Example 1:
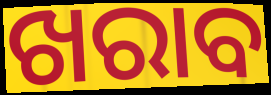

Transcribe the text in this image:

ଖରାବ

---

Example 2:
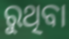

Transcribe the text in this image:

ରୁଥିବା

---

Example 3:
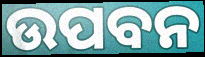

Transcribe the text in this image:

ଉପବନ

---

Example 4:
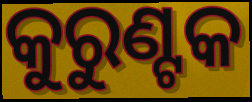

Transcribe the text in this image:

କୁରୁଣ୍ଟକ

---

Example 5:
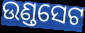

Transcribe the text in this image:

ଉଣ୍ଡସେଟ